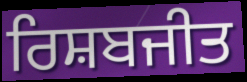
ਰਿਸ਼ਬਜੀਤ